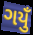
ગયુઁ